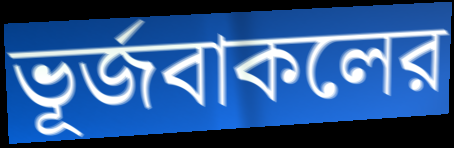
ভূর্জবাকলের